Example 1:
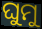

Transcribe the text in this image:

ଘୁମୁ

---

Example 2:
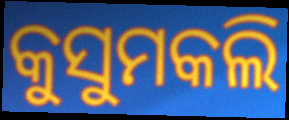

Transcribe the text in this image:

କୁସୁମକଲି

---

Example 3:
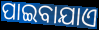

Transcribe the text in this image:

ପାଇବାଯାଏ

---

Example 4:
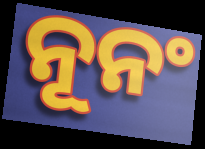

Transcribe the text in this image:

ନୂନଂ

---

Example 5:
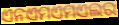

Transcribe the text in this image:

ଏନଏମଏମଏଲର